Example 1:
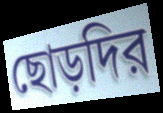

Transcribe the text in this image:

ছোড়দির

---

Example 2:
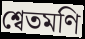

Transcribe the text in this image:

শ্বেতমণি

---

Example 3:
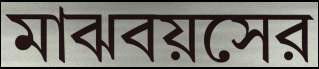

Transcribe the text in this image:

মাঝবয়সের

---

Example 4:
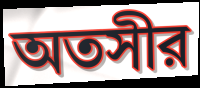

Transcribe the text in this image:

অতসীর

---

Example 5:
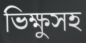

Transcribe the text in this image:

ভিক্ষুসহ